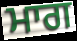
ਮਾਗ